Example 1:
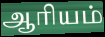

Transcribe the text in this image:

ஆரியம்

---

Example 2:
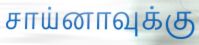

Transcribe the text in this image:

சாய்னாவுக்கு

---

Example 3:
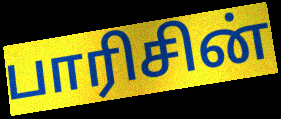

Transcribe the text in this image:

பாரிசின்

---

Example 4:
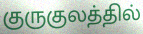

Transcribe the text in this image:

குருகுலத்தில்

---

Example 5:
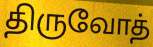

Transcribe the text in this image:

திருவோத்